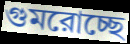
গুমরোচ্ছে